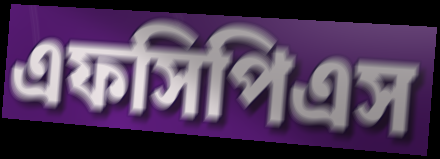
এফসিপিএস